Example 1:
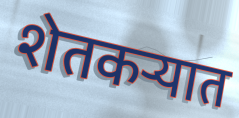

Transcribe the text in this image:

शेतकऱ्यात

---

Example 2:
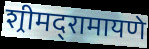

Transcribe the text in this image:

श्रीमद्‌रामायणे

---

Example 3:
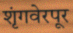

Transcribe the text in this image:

शृंगवेरपूर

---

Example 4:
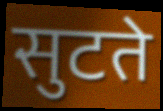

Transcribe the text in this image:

सुटते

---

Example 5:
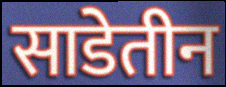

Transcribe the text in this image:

साडेतीन